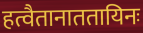
हत्वैतानाततायिनः